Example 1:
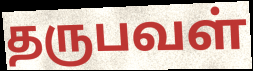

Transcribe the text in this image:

தருபவள்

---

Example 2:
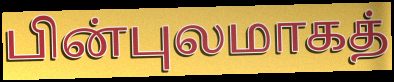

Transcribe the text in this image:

பின்புலமாகத்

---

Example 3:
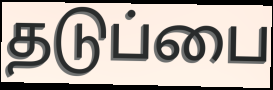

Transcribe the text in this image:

தடுப்பை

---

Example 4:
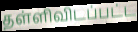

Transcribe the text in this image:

தள்ளிவிடப்பட்ட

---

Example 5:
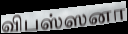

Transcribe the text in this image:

விபஸ்ஸனா